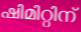
ഷിമിറ്റിന്